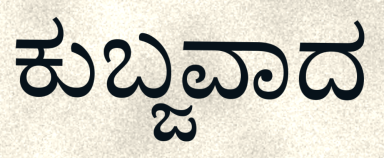
ಕುಬ್ಜವಾದ